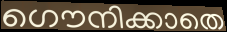
ഗൌനിക്കാതെ